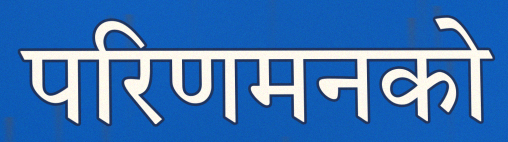
परिणमनको